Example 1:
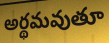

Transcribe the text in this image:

అర్థమవుతూ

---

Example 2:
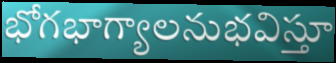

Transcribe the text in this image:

భోగభాగ్యాలనుభవిస్తూ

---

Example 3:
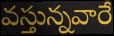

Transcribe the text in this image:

వస్తున్నవారే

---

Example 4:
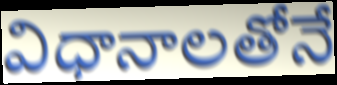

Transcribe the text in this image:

విధానాలతోనే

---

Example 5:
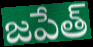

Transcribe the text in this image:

జపేత్